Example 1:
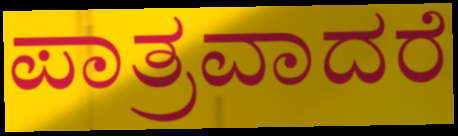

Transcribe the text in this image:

ಪಾತ್ರವಾದರೆ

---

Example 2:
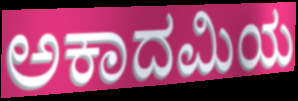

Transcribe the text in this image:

ಅಕಾದಮಿಯ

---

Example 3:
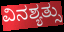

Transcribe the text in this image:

ವಿನಶ್ಯತ್ಸು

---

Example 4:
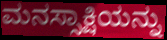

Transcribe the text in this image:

ಮನಸ್ಸಾಕ್ಷಿಯನ್ನು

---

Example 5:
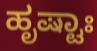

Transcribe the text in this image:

ಹೃಷ್ಟಾಃ